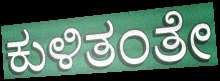
ಕುಳಿತಂತೇ